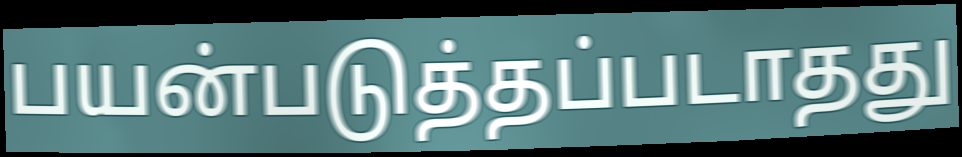
பயன்படுத்தப்படாதது